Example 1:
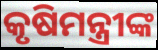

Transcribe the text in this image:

କୃଷିମନ୍ତ୍ରୀଙ୍କ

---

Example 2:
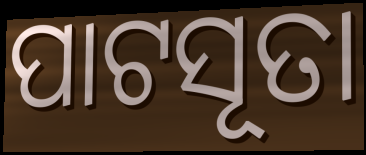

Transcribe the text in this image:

ପାଟସୂତା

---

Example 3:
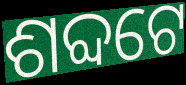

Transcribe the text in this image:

ଶବ୍ଦଟେ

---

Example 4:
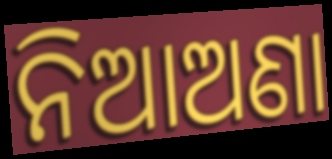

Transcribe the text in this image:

ନିଆଅଣା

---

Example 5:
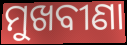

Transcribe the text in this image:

ମୁଖବୀଣା